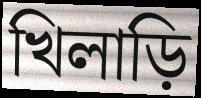
খিলাড়ি